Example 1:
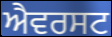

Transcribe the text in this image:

ਐਵਰਸਟ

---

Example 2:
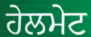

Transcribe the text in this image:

ਹੇਲਮੇਟ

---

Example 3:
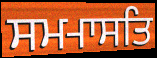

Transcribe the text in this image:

ਸਮ੍ਮਾਸਤਿ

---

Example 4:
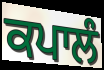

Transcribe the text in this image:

ਕਪਾਲੰ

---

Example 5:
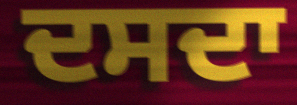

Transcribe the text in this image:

ਦਸਦਾ